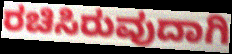
ರಚಿಸಿರುವುದಾಗಿ